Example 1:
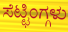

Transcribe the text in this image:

ಸೆಟ್ಟಿಂಗ್ಗಳು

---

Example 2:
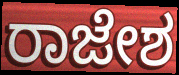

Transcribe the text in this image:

ರಾಜೇಶ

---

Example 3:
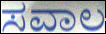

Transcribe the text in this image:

ಸವಾಲ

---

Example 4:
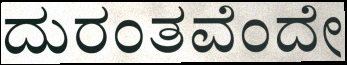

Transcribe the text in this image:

ದುರಂತವೆಂದೇ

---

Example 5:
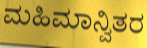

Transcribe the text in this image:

ಮಹಿಮಾನ್ವಿತರ